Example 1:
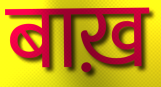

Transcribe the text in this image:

बाख़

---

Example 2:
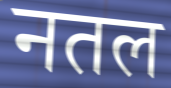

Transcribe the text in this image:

नतल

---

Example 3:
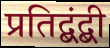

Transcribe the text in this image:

प्रतिद्बंद्बी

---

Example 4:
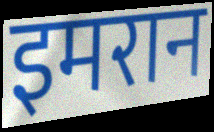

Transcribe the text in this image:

इमरान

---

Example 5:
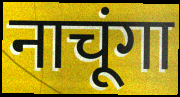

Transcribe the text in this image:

नाचूंगा